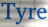
Tyre